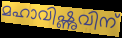
മഹാവിഷ്ണുവിന്